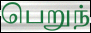
பெறுந்